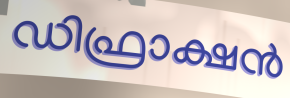
ഡിഫ്രാക്ഷൻ